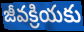
జీవక్రియకు